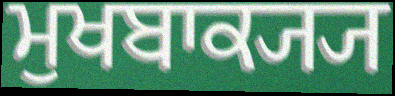
ਮੁਖਬਾਕ੍ਯ੍ਯ